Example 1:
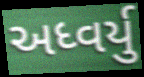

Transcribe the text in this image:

અધ્વર્યુ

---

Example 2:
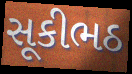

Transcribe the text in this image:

સૂકીભઠ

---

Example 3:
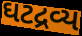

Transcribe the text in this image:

ઘટદ્રવ્ય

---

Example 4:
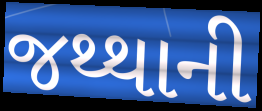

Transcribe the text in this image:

જથ્થાની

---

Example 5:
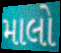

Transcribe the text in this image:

માલો